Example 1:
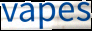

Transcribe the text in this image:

vapes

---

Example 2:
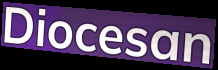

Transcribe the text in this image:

Diocesan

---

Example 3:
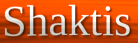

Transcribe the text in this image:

Shaktis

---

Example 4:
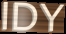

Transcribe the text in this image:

IDY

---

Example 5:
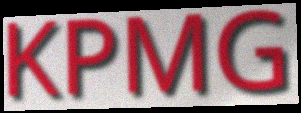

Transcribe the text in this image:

KPMG